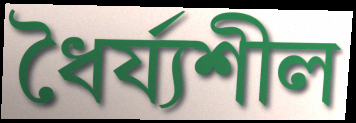
ধৈর্য্যশীল